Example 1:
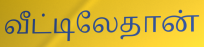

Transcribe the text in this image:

வீட்டிலேதான்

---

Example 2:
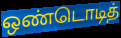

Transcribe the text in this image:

ஒண்டொடித்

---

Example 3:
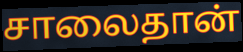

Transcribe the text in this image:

சாலைதான்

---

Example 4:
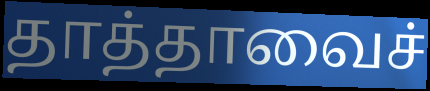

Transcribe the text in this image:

தாத்தாவைச்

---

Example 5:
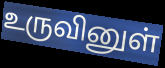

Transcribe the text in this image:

உருவினுள்